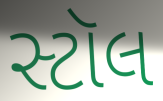
સ્ટૉલ